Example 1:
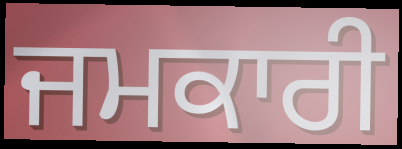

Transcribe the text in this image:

ਜਮਕਾਰੀ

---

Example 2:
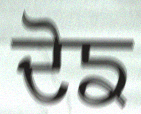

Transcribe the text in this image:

ਦੋਙ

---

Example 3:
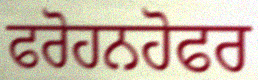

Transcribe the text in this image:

ਫਰੋਹਨਹੋਫਰ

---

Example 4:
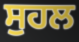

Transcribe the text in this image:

ਸੁਹਲ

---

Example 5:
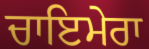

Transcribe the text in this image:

ਚਾਇਮੇਰਾ